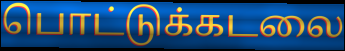
பொட்டுக்கடலை